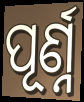
ପୂର୍ଣ୍ନ